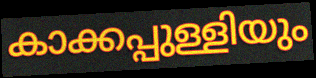
കാക്കപ്പുള്ളിയും